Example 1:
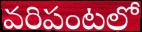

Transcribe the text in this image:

వరిపంటలో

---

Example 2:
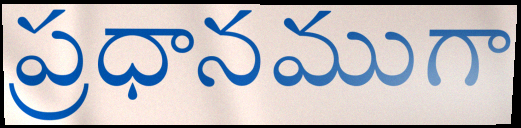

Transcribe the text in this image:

ప్రధానముగా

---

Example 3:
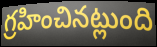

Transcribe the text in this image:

గ్రహించినట్లుంది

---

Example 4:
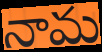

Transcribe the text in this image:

నామ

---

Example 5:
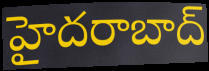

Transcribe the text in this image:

హైదరాబాద్